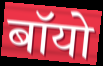
बॉयो